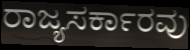
ರಾಜ್ಯಸರ್ಕಾರವು